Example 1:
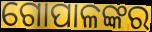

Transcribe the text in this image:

ଗୋପାଳଙ୍କର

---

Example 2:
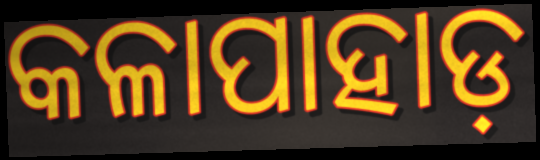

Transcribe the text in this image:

କଳାପାହାଡ଼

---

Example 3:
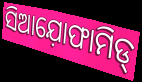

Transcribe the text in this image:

ସିଆଯ଼ୋଫାମିଡ୍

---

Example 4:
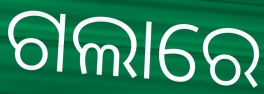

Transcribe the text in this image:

ଗଲାରେ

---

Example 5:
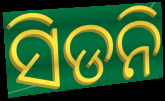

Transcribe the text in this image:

ସିଡନି